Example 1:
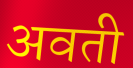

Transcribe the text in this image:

अवती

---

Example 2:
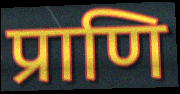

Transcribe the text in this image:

प्राणि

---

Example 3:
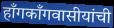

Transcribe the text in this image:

हाँगकाँगवासीयांची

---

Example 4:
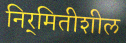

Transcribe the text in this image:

निर्मितीशील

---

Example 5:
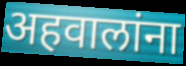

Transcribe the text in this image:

अहवालांना